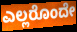
ಎಲ್ಲರೊಂದೇ